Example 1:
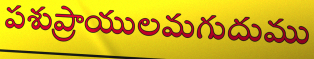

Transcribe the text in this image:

పశుప్రాయులమగుదుము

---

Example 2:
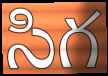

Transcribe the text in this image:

సిగ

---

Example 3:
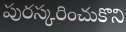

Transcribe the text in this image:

పురస్కరించుకొని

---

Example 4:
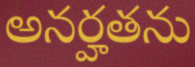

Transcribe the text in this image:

అనర్హతను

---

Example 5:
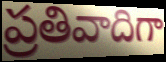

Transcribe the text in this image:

ప్రతివాదిగా